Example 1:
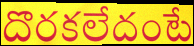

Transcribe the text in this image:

దొరకలేదంటే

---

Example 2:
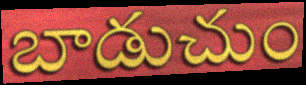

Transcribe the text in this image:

బాడుచుం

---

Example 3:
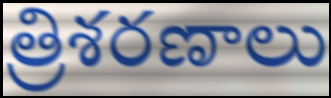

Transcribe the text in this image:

త్రిశరణాలు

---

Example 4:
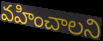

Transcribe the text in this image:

వహించాలని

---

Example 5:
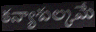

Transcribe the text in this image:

కన్యాశుల్కమే